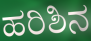
ಹರಿಶಿನ